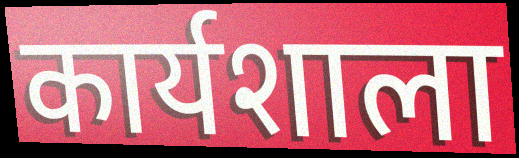
कार्यशाला